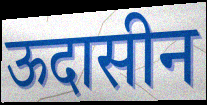
ऊदासीन